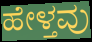
ಹೇಳ್ತವು